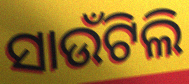
ସାଉଁଟିଲି